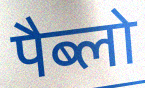
पैब्लो